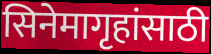
सिनेमागृहांसाठी